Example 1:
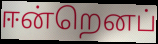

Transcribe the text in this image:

ஈன்றெனப்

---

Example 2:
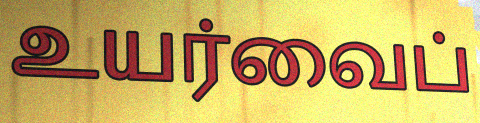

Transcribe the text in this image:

உயர்வைப்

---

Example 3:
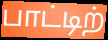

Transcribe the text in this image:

பாட்டிற்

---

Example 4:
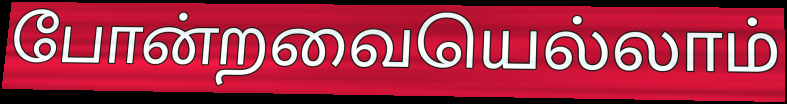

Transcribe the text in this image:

போன்றவையெல்லாம்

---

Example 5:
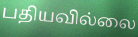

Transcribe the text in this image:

பதியவில்லை